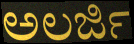
ಅಲರ್ಜಿ